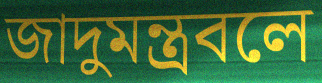
জাদুমন্ত্রবলে